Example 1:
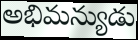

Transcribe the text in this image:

అభిమన్యుడు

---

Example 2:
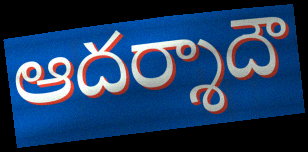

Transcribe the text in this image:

ఆదర్శాదౌ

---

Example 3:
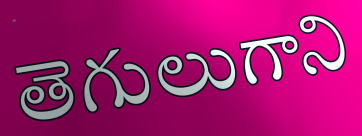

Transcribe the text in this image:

తెగులుగాని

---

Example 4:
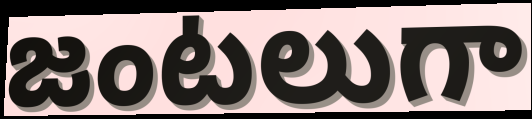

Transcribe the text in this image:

జంటలుగా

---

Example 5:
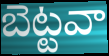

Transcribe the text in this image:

బెట్టవా